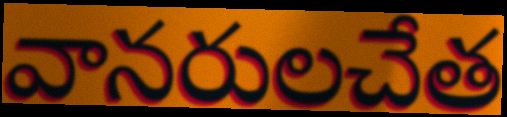
వానరులచేత